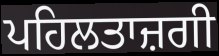
ਪਹਿਲਤਾਜ਼ਗੀ